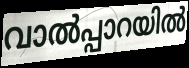
വാൽപ്പാറയിൽ